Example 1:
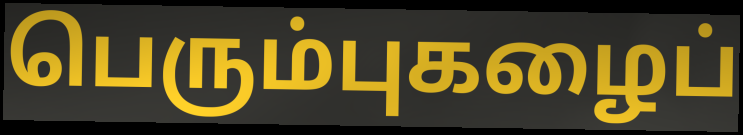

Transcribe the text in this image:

பெரும்புகழைப்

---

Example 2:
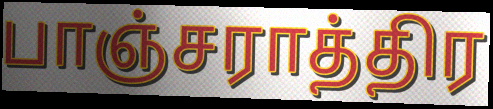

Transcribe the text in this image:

பாஞ்சராத்திர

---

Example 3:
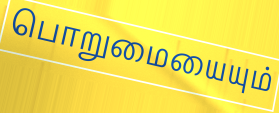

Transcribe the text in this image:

பொறுமையையும்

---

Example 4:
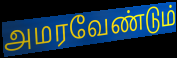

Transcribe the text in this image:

அமரவேண்டும்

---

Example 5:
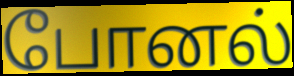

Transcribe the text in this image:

போனல்